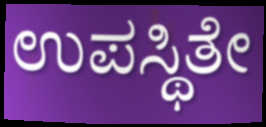
ಉಪಸ್ಥಿತೇ